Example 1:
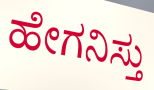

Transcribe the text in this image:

ಹೇಗನಿಸ್ತು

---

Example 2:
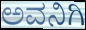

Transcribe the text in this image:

ಅವನಿಗಿ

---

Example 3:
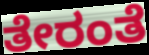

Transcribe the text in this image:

ತೇರಂತೆ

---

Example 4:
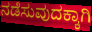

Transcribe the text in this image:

ನಡೆಸುವುದಕ್ಕಾಗಿ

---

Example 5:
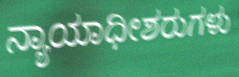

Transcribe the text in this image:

ನ್ಯಾಯಾಧೀಶರುಗಳು